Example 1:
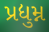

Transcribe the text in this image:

પ્રદ્યુમ્ન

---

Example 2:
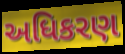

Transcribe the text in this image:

અધિકરણ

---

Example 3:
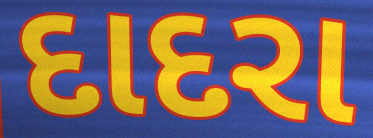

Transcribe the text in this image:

દાદરા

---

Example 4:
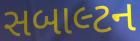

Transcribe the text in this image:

સબાલ્ટન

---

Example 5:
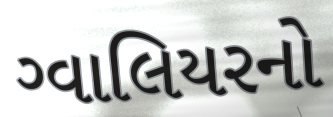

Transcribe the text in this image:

ગ્વાલિયરનો